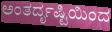
ಅಂತರ್ದೃಷ್ಟಿಯಿಂದ